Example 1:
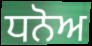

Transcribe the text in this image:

ਧਨੋਅ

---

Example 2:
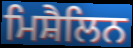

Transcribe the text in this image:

ਮਿਸ਼ੈਲਿਨ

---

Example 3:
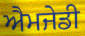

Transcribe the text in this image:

ਐਮਜੇਡੀ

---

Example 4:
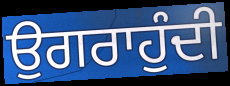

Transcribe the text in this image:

ਉਗਰਾਹੁੰਦੀ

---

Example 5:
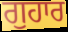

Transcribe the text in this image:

ਗੁਹਾਰ